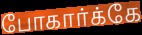
போகார்க்கே